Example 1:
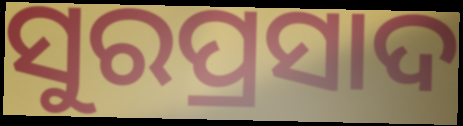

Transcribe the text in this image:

ସୁରପ୍ରସାଦ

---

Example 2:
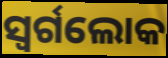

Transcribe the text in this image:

ସ୍ୱର୍ଗଲୋକ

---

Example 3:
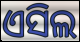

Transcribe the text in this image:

ଏସିଲ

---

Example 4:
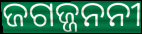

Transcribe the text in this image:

ଜଗଜ୍ଜନନୀ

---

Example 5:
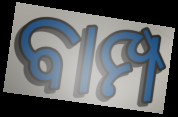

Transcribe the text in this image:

ବାମ୍ପ